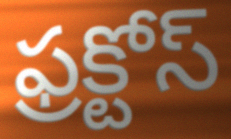
ఫ్రక్టోస్